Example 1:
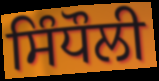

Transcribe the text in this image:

ਸਿੰਧੌਲੀ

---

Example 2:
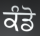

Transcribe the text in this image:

ਕੰਡੋ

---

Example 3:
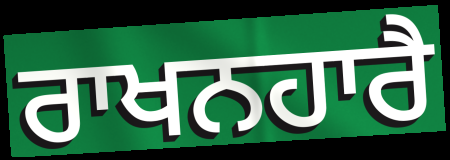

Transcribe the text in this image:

ਰਾਖਨਹਾਰੈ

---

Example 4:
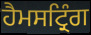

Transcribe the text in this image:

ਹੈਮਸਟ੍ਰਿੰਗ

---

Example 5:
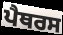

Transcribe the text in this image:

ਪੈਥਰਸ